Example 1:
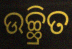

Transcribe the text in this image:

ଉଚ୍ଛ୍ରିତ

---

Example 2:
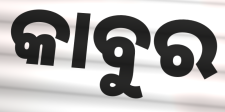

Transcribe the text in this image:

କାବୁର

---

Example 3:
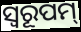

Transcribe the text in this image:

ସ୍ୱରୂପମ୍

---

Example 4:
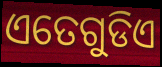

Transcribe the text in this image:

ଏତେଗୁଡିଏ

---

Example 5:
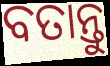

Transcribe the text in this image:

ବତାନ୍ତୁ